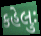
કહેલુઃ